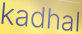
kadhal